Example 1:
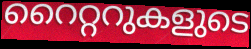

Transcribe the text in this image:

റൈറ്ററുകളുടെ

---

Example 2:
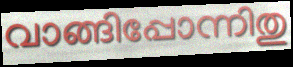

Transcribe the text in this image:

വാങ്ങിപ്പോന്നിതു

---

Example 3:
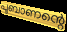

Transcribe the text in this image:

പൂബാണന്റെ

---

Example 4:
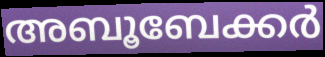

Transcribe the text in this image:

അബൂബേക്കർ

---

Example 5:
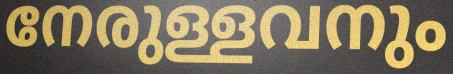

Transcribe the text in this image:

നേരുള്ളവനും